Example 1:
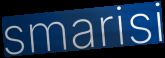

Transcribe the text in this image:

smarisi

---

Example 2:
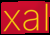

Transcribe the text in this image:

xal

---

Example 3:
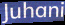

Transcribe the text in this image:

Juhani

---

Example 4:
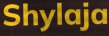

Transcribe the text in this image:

Shylaja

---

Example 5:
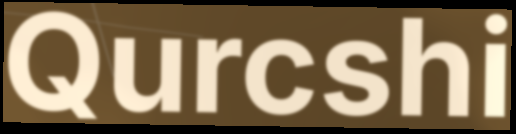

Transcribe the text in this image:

Qurcshi